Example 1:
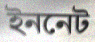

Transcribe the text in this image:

ইননেট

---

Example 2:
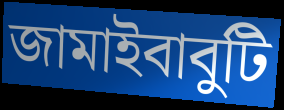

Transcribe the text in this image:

জামাইবাবুটি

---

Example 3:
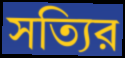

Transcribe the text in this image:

সত্যির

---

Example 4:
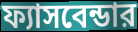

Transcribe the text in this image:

ফ্যাসবেন্ডার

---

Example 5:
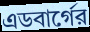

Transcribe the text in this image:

এডবার্গের